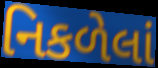
નિકળેલાં